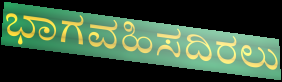
ಭಾಗವಹಿಸದಿರಲು